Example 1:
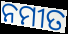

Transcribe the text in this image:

ନମୀତ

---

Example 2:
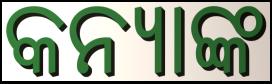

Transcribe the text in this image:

କନ୍ୟାଙ୍କ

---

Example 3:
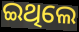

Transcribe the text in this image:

ଇଥିଲେ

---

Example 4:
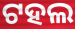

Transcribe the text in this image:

ଟହଲ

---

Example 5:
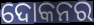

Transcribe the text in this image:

ଦୋକନର